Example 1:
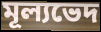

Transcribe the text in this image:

মূল্যভেদ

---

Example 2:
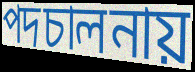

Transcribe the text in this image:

পদচালনায়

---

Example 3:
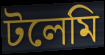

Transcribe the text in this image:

টলেমি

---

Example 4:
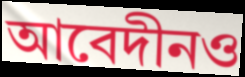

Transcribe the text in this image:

আবেদীনও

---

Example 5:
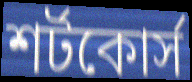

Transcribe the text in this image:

শর্টকোর্স